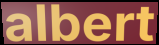
albert